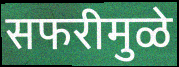
सफरीमुळे